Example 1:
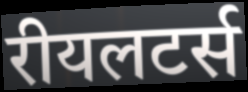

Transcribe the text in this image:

रीयलटर्स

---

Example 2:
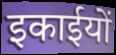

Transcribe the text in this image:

इकाईयों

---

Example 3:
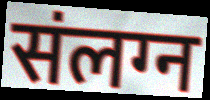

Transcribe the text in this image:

संलग्न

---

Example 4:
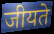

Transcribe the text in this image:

जीयते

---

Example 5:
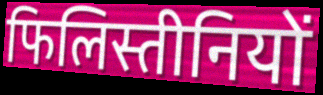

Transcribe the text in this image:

फिलिस्तीनियों